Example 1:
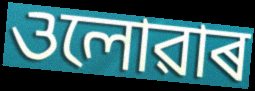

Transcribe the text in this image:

ওলোৱাৰ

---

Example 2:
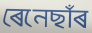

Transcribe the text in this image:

ৰেনেছাঁৰ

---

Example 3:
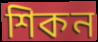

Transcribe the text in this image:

শিকন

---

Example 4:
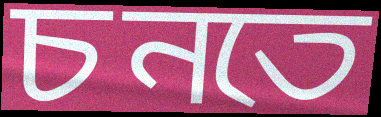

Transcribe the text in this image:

চনতে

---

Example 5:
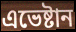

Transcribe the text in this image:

এভেষ্টান